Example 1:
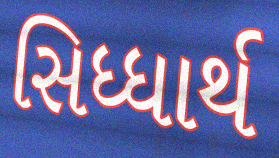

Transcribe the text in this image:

સિધ્ધાર્થ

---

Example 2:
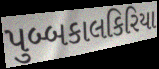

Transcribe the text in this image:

પુબ્બકાલકિરિયા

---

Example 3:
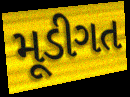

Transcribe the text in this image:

મૂડીગત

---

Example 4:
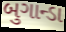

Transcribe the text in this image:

બુગાન્ડા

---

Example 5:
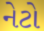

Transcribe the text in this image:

નેટો